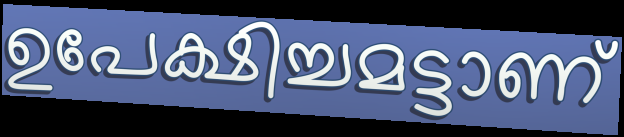
ഉപേക്ഷിച്ചമട്ടാണ്